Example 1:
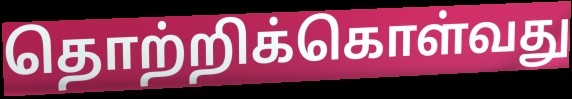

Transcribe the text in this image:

தொற்றிக்கொள்வது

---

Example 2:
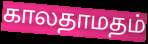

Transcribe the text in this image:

காலதாமதம்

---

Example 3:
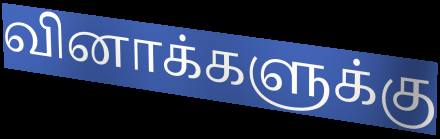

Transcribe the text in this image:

வினாக்களுக்கு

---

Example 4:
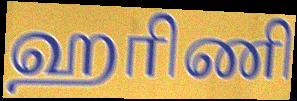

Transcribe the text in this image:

ஹரிணி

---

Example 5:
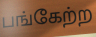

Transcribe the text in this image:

பங்கேற்ற